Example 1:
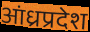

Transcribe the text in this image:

आंध्रप्रदेश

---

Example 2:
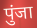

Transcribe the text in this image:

पुंजा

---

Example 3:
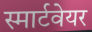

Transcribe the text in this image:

स्मार्टवेयर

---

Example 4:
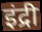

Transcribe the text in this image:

इंद्री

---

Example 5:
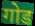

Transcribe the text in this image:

गोड